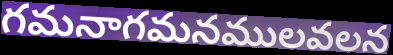
గమనాగమనములవలన